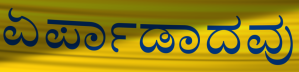
ಏರ್ಪಾಡಾದವು